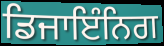
ਡਿਜਾਇੰਨਿਗ